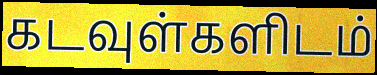
கடவுள்களிடம்